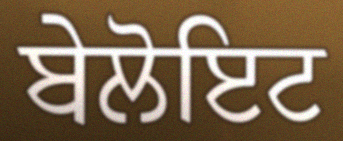
ਬੇਲੋਇਟ